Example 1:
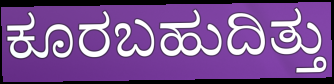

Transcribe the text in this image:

ಕೂರಬಹುದಿತ್ತು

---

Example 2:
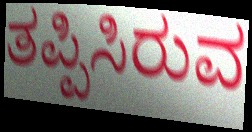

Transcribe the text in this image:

ತಪ್ಪಿಸಿರುವ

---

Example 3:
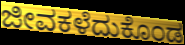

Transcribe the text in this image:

ಜೀವಕಳೆದುಕೊಂಡ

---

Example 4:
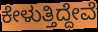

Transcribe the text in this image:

ಕೇಳುತ್ತಿದ್ದೇವೆ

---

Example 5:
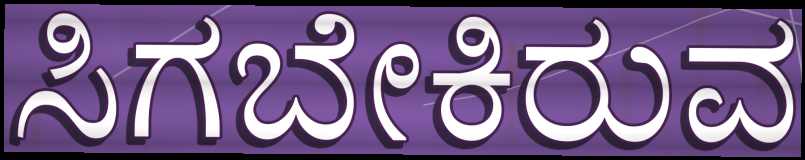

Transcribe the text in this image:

ಸಿಗಬೇಕಿರುವ